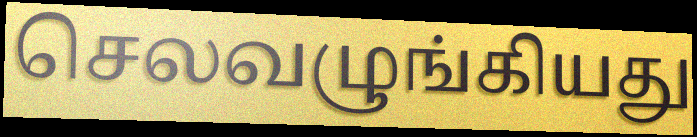
செலவழுங்கியது